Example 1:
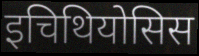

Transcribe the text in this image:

इचिथियोसिस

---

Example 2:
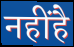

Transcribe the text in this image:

नहींहै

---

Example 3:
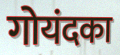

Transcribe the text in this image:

गोयंदका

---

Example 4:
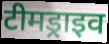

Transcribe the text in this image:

टीमड्राइव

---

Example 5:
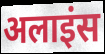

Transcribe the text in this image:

अलाइंस